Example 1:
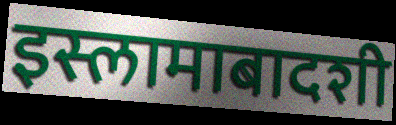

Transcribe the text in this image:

इस्लामाबादशी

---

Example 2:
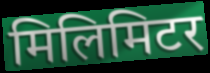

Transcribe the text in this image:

मिलिमिटर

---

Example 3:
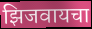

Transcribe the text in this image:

झिजवायचा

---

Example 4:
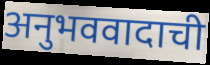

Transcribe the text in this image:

अनुभववादाची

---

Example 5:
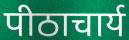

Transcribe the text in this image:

पीठाचार्य